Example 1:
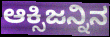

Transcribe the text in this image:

ಆಕ್ಸಿಜನ್ನಿನ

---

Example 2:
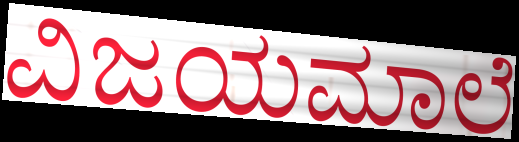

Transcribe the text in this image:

ವಿಜಯಮಾಲೆ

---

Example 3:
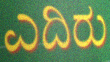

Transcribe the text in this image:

ಎದಿರು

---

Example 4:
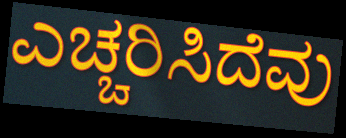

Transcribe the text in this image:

ಎಚ್ಚರಿಸಿದೆವು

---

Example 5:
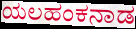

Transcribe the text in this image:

ಯಲಹಂಕನಾಡ